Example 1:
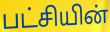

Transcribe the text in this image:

பட்சியின்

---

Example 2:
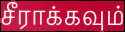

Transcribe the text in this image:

சீராக்கவும்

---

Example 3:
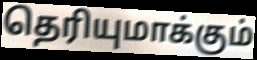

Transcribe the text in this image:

தெரியுமாக்கும்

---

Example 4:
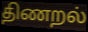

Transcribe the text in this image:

திணறல்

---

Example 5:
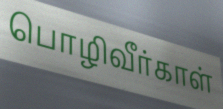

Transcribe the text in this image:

பொழிவீர்காள்